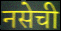
नसेची